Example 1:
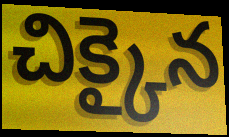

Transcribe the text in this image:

చిక్కైన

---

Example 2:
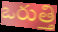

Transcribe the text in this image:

ఒరుత్తి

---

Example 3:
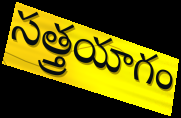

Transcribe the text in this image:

సత్త్రయాగం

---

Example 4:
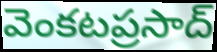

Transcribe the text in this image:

వెంకటప్రసాద్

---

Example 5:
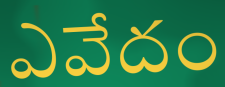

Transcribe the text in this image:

ఎవేదం